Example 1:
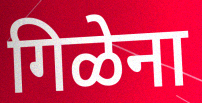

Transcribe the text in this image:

गिळेना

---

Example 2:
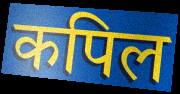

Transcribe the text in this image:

कपिल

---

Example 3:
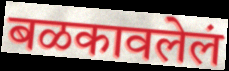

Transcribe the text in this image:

बळकावलेलं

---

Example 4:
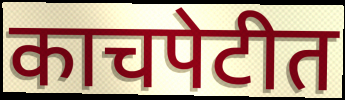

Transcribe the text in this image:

काचपेटीत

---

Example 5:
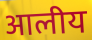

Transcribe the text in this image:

आलीय